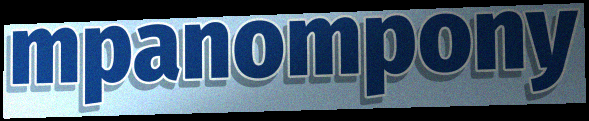
mpanompony